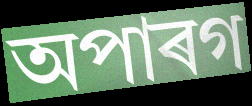
অপাৰগ